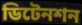
ডিটেনশন